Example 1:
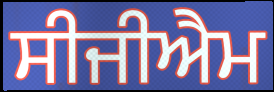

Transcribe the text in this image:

ਸੀਜੀਐਮ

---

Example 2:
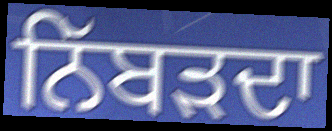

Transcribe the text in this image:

ਨਿੱਬੜਦਾ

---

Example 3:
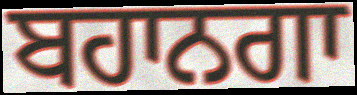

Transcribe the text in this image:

ਬਹਾਨਗਾ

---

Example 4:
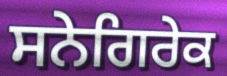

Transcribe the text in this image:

ਸਨੇਗਿਰੇਕ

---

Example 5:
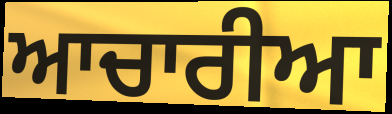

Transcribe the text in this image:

ਆਚਾਰੀਆ